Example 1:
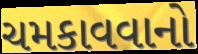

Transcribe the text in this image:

ચમકાવવાનો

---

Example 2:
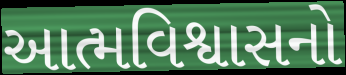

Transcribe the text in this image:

આત્મવિશ્વાસનો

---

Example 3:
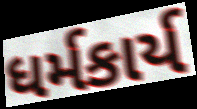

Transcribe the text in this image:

ધર્મકાર્ય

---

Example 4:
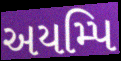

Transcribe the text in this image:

અયમ્પિ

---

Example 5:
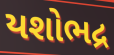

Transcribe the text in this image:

યશોભદ્ર